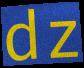
dz